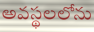
అవస్థలలోను